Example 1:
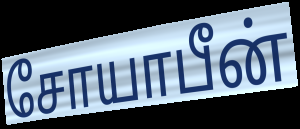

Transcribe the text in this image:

சோயாபீன்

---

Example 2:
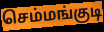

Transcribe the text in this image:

செம்மங்குடி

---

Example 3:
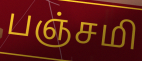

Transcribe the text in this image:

பஞ்சமி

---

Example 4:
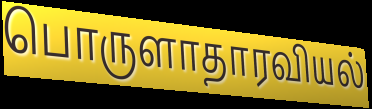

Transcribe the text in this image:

பொருளாதாரவியல்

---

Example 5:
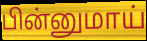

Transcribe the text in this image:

பின்னுமாய்